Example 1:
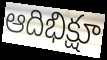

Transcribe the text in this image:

ఆదిభిక్షూ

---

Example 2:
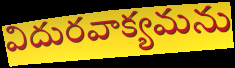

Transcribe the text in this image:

విదురవాక్యమను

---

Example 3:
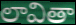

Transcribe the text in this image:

లావితా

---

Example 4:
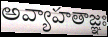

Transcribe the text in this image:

అవ్యాహతాజ్ఞః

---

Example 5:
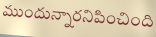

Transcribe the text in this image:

ముందున్నారనిపించింది